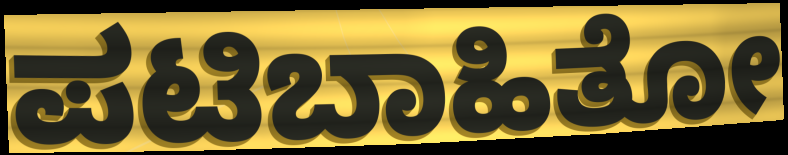
ಪಟಿಬಾಹಿತೋ